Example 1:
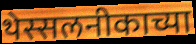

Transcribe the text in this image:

थेस्सलनीकाच्या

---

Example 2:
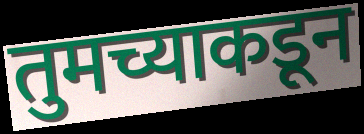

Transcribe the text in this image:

तुमच्याकडून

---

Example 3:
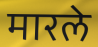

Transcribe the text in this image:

मारले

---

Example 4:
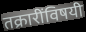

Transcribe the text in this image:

तक्रारींविषयी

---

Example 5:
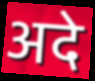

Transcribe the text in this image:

अदे